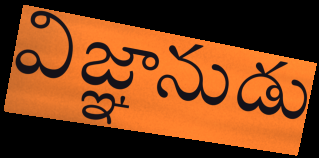
విజ్ఞానుడు